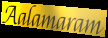
Aalamaram